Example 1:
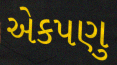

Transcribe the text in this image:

એકપણુ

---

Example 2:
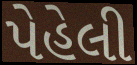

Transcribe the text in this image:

પેહેલી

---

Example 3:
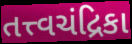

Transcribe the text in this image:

તત્ત્વચંદ્રિકા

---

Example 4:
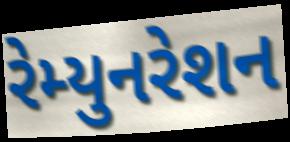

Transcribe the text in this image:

રેમ્યુનરેશન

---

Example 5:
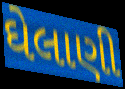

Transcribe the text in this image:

ઘેલાણી